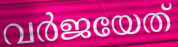
വർജയേത്